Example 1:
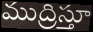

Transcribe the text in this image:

ముద్రిస్తూ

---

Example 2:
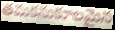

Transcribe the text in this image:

తమకనుకూలమైన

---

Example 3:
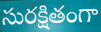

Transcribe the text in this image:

సురక్షితంగా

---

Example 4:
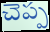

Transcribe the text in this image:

చెప్ప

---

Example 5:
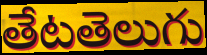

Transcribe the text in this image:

తేటతెలుగు